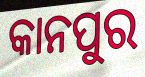
କାନପୁର